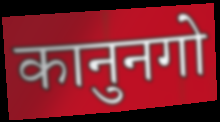
कानुनगो